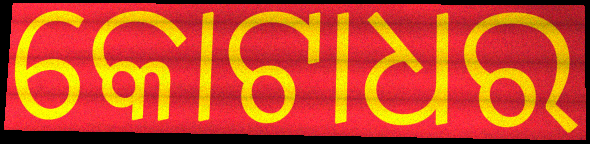
କୋଟାଧର